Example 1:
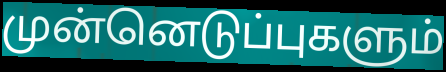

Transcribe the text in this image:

முன்னெடுப்புகளும்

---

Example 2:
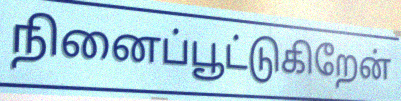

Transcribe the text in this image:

நினைப்பூட்டுகிறேன்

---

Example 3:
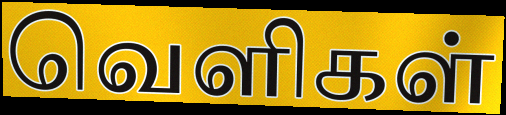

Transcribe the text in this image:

வெளிகள்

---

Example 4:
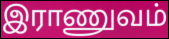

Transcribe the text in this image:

இராணுவம்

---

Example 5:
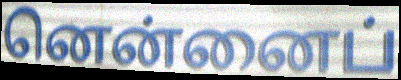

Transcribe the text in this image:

னென்னைப்